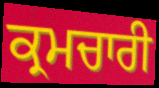
ਕ੍ਰਮਚਾਰੀ